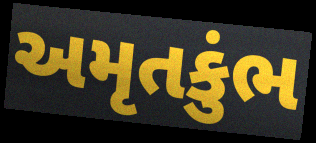
અમૃતકુંભ